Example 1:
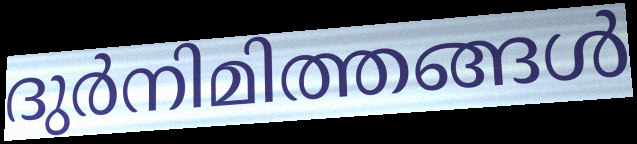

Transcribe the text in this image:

ദുർനിമിത്തങ്ങൾ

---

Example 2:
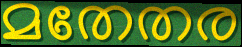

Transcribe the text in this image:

മതേതര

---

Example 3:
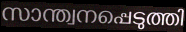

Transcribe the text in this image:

സാന്ത്വനപ്പെടുത്തി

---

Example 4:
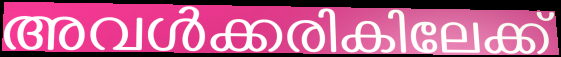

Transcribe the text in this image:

അവൾക്കരികിലേക്ക്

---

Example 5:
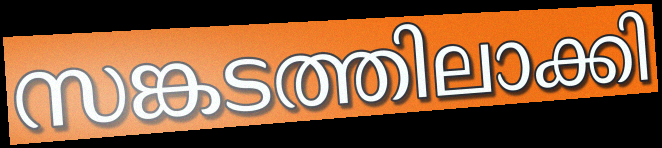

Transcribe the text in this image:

സങ്കടത്തിലാക്കി